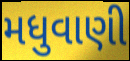
મધુવાણી